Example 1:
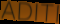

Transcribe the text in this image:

ADITI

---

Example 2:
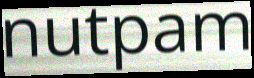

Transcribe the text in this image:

nutpam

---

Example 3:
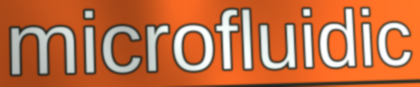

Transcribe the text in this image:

microfluidic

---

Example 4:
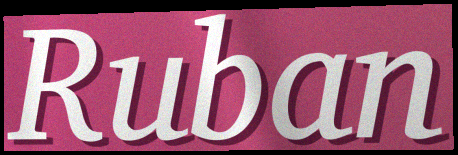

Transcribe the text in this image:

Ruban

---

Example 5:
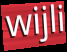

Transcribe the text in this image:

wijli